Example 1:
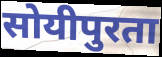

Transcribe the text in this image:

सोयीपुरता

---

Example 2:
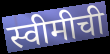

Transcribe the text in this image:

स्वीमीची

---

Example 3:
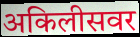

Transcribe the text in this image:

अकिलीसवर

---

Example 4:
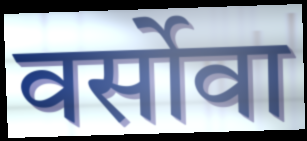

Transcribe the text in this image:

वर्सोवा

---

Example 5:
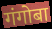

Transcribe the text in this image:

गंगोबा